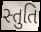
સ્તુતિ